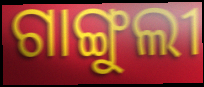
ଗାଙ୍ଗୁଲୀ